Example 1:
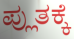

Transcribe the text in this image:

ಪ್ಲುತಕ್ಕೆ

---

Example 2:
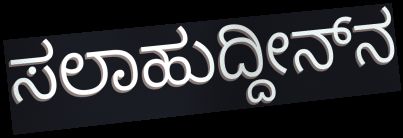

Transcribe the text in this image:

ಸಲಾಹುದ್ದೀನ್‍ನ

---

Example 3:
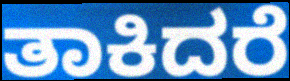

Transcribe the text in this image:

ತಾಕಿದರೆ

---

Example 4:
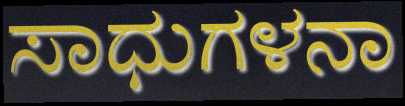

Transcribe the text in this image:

ಸಾಧುಗಳನಾ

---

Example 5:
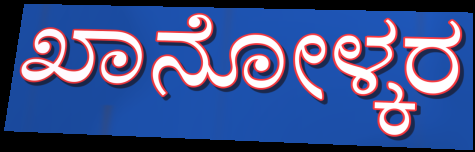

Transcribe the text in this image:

ಖಾನೋಳ್ಕರ